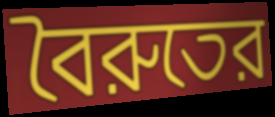
বৈরুতের